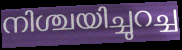
നിശ്ചയിച്ചുറച്ച